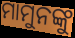
ମାମୁନଙ୍କୁ